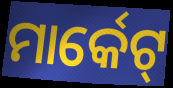
ମାର୍କେଟ୍